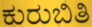
ಕುರುಬಿತಿ